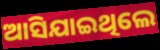
ଆସିଯାଇଥିଲେ